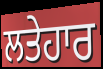
ਲਤੇਹਾਰ